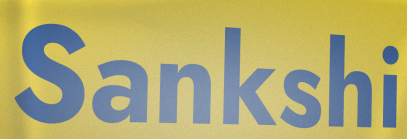
Sankshi